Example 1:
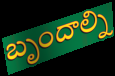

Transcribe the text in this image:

బృందాల్ని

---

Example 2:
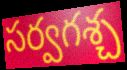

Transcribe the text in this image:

సర్వగశ్చ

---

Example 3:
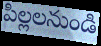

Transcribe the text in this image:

పిల్లలనుండి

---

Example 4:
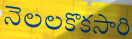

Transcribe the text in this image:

నెలలకొకసారి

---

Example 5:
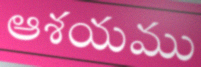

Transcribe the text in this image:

ఆశయము